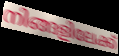
നിങ്ങളിലേക്ക്